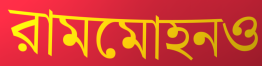
রামমোহনও